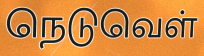
நெடுவெள்